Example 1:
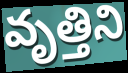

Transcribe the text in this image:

వృత్తిని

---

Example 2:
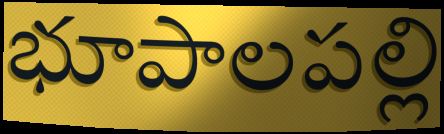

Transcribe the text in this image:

భూపాలపల్లి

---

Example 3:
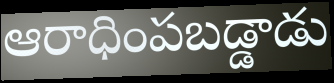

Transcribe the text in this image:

ఆరాధింపబడ్డాడు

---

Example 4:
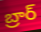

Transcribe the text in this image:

బ్రార్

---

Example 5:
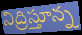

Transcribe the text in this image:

నిద్రిస్తూన్న